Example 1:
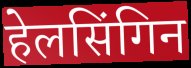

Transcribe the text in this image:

हेलसिंगिन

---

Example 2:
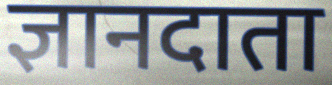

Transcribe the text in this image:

ज्ञानदाता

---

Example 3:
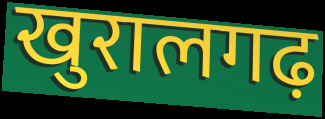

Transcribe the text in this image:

खुरालगढ़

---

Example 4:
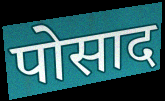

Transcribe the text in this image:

पोसाद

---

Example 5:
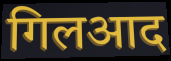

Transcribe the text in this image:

गिलआद